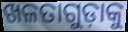
ଖଳତାଗୁଡ଼ାକୁ